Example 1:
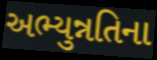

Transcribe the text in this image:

અભ્યુન્નતિના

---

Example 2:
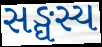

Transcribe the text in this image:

સઙ્ઘસ્ય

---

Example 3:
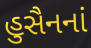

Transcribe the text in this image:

હુસૈનનાં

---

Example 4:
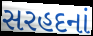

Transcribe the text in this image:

સરહદનાં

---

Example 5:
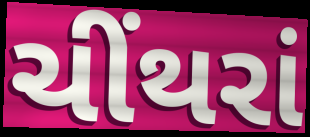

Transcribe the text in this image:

ચીંથરાં